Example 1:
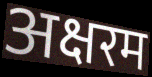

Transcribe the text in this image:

अक्षरम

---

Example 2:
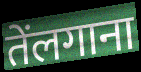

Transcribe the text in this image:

तेंलगाना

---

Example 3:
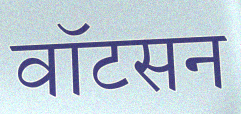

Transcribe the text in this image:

वॉटसन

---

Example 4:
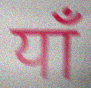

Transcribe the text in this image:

याँ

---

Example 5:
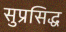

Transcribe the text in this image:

सुप्रसिद्ध